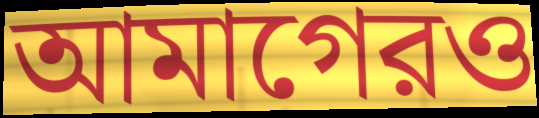
আমাগেরও